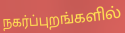
நகர்ப்புறங்களில்